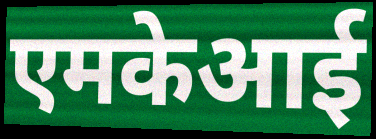
एमकेआई